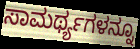
ಸಾಮರ್ಥ್ಯಗಳನ್ನೂ